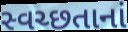
સ્વચ્છતાનાં